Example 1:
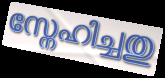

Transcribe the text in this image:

സ്നേഹിച്ചതു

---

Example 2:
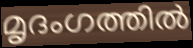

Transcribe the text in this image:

മൃദംഗത്തിൽ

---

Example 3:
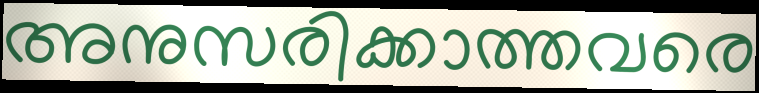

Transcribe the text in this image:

അനുസരിക്കാത്തവരെ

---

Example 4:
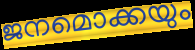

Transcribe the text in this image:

ജനമൊക്കയും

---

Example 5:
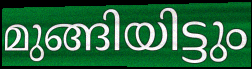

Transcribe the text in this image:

മുങ്ങിയിട്ടും